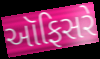
ઑફિસરે